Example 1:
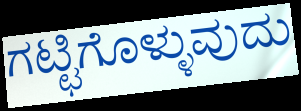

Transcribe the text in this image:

ಗಟ್ಟಿಗೊಳ್ಳುವುದು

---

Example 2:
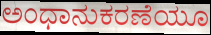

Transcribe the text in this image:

ಅಂಧಾನುಕರಣೆಯೂ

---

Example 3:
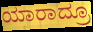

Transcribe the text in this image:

ಯಾರಾದ್ರೂ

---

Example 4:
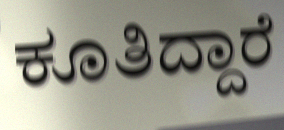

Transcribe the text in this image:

ಕೂತಿದ್ದಾರೆ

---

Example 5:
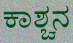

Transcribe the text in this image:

ಕಾಶ್ಚನ